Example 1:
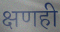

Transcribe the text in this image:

क्षणही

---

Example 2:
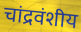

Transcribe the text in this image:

चांद्रवंशीय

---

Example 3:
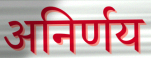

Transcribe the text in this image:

अनिर्णय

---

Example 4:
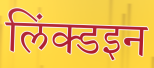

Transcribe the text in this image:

लिंक्डइन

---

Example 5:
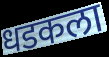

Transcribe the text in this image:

धडकला